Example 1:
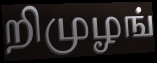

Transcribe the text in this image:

றிமுழங்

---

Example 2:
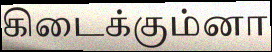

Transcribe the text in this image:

கிடைக்கும்னா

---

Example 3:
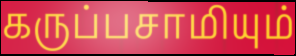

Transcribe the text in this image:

கருப்பசாமியும்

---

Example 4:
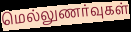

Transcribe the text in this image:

மெல்லுணர்வுகள்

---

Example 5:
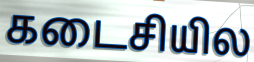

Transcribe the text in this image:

கடைசியில